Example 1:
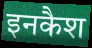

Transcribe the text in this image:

इनकैश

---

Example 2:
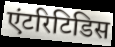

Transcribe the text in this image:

एंटरिटिडिस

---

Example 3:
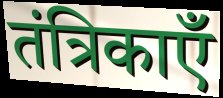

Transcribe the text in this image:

तंत्रिकाएँ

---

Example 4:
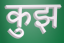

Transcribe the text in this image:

कुझ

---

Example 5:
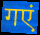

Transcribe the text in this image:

गएं